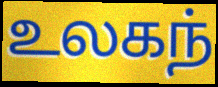
உலகந்